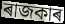
ৰাজকাৰ